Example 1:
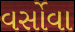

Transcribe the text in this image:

વર્સોવા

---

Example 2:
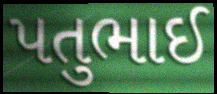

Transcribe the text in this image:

પતુભાઈ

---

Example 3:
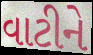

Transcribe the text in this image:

વાટીને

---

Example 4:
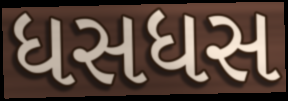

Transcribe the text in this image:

ધસધસ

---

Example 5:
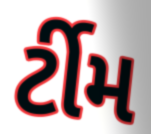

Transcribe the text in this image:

ર્ટીમ